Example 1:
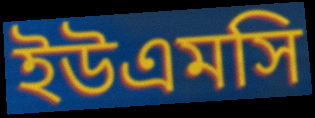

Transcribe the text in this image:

ইউএমসি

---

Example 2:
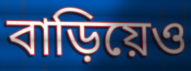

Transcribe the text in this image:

বাড়িয়েও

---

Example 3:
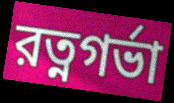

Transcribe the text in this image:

রত্নগর্ভা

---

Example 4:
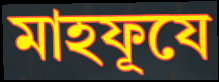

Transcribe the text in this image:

মাহফূযে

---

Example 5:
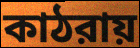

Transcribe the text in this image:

কাঠরায়